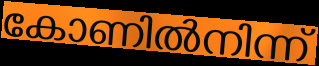
കോണിൽനിന്ന്